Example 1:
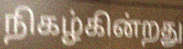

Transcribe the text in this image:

நிகழ்கின்றது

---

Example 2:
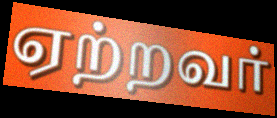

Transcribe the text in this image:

ஏற்றவர்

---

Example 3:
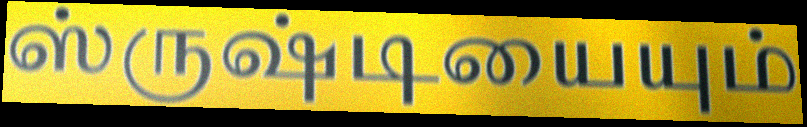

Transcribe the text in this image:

ஸ்ருஷ்டியையும்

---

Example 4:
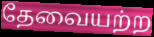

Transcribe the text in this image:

தேவையற்ற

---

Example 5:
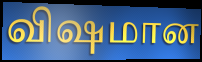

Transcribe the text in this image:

விஷமான